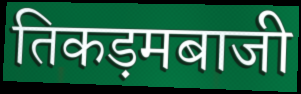
तिकड़मबाजी